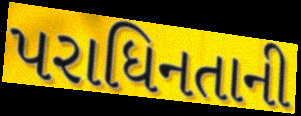
પરાધિનતાની